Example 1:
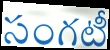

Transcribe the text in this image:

సంగటీ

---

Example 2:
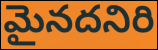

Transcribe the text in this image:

మైనదనిరి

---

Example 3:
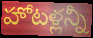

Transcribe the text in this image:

హోటళ్లన్నీ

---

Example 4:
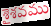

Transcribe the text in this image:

శైశవము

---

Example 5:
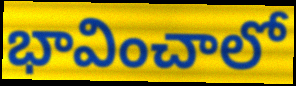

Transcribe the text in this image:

భావించాలో